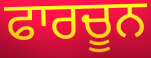
ਫਾਰਚੂਨ